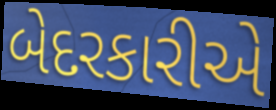
બેદરકારીએ